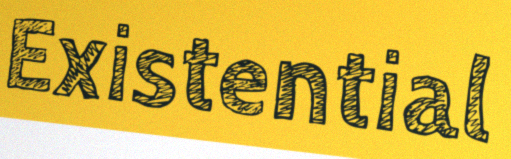
Existential